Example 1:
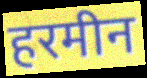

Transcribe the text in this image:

हरमीन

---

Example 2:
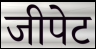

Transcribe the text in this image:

जीपेट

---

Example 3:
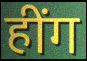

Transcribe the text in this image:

हींग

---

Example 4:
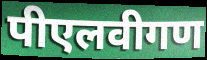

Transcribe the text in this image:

पीएलवीगण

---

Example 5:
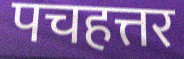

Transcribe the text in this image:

पचहत्तर